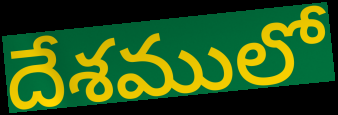
దేశములో